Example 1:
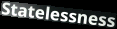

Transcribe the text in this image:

Statelessness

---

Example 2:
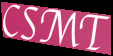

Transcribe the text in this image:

CSMT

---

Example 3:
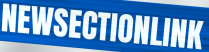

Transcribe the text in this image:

NEWSECTIONLINK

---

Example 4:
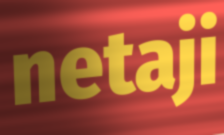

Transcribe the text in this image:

netaji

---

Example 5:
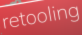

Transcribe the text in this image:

retooling